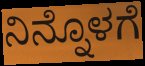
ನಿನ್ನೊಳಗೆ